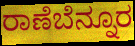
ರಾಣೆಬೆನ್ನೂರ